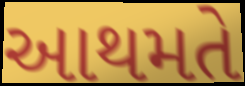
આથમતે